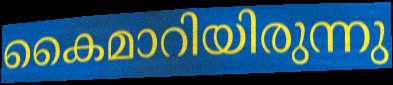
കൈമാറിയിരുന്നു